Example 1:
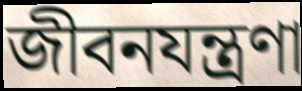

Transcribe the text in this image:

জীবনযন্ত্রণা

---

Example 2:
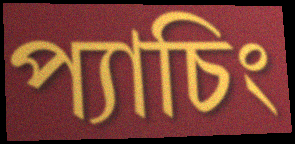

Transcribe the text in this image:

প্যাচিং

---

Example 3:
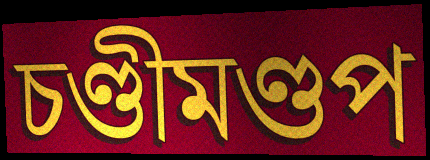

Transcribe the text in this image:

চণ্ডীমণ্ডপ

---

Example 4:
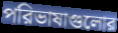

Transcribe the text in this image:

পরিভাষাগুলোর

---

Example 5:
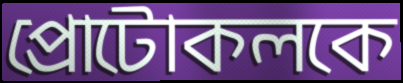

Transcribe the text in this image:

প্রোটোকলকে